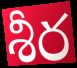
శీర